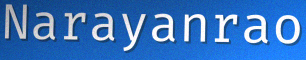
Narayanrao